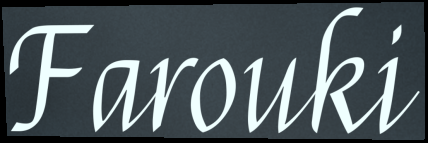
Farouki